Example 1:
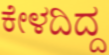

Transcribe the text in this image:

ಕೇಳದಿದ್ದ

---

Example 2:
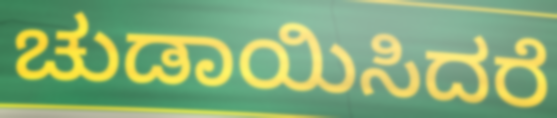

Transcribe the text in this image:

ಚುಡಾಯಿಸಿದರೆ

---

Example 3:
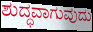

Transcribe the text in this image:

ಶುದ್ಧವಾಗುವುದು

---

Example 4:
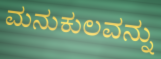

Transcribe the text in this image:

ಮನುಕುಲವನ್ನು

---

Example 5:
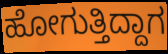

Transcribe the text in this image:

ಹೋಗುತ್ತಿದ್ದಾಗ